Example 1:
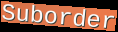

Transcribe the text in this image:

Suborder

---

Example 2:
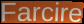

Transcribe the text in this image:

Farcire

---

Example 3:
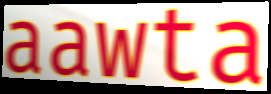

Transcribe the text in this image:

aawta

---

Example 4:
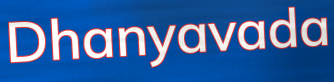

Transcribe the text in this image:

Dhanyavada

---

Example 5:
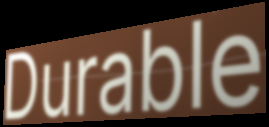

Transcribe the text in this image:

Durable